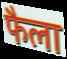
फैला